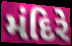
મંદિરે